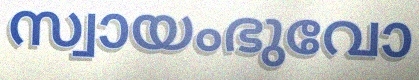
സ്വായംഭുവോ